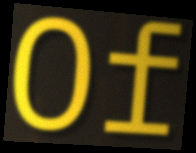
Of